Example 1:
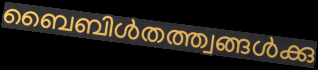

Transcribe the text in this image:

ബൈബിൾതത്ത്വങ്ങൾക്കു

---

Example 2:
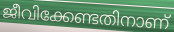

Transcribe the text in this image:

ജീവിക്കേണ്ടതിനാണ്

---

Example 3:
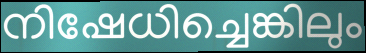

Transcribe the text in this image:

നിഷേധിച്ചെങ്കിലും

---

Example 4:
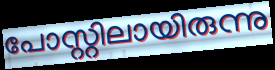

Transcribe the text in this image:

പോസ്റ്റിലായിരുന്നു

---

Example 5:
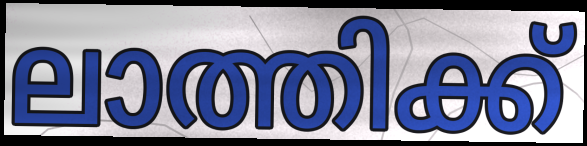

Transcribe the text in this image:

ലാത്തിക്ക്